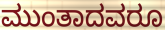
ಮುಂತಾದವರೂ